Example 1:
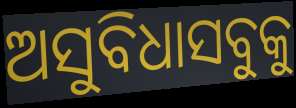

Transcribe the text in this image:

ଅସୁବିଧାସବୁକୁ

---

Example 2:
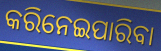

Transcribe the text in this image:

କରିନେଇପାରିବା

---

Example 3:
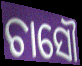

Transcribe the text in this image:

ଚାସୌ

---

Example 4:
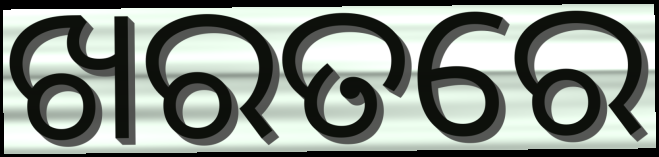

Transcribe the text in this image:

ଖରତରେ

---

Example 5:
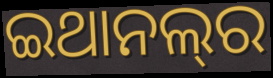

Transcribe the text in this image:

ଇଥାନଲ୍‌ର